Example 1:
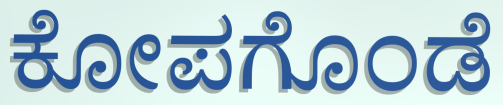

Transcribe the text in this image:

ಕೋಪಗೊಂಡೆ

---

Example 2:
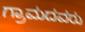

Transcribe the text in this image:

ಗ್ರಾಮದವರು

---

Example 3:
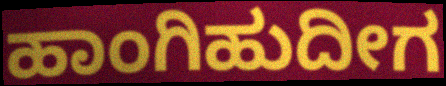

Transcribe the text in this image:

ಹಾಂಗಿಹುದೀಗ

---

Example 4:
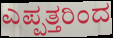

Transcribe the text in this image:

ಎಪ್ಪತ್ತರಿಂದ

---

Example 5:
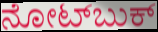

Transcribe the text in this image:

ನೋಟ್‌ಬುಕ್